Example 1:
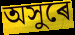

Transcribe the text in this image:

অসুৰে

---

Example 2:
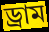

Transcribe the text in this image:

ড্ৰাম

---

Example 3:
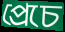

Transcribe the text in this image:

প্ৰেচে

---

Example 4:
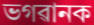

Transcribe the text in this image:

ভগৱানক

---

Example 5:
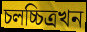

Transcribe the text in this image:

চলচ্চিত্ৰখন